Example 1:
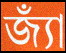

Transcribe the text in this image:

জ্যাঁ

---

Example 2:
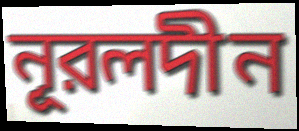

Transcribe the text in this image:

নূরলদীন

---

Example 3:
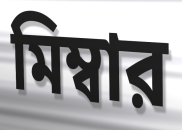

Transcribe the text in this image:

মিম্বার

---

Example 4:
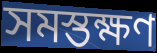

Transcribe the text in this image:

সমস্তক্ষণ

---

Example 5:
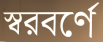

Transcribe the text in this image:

স্বরবর্ণে